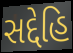
સદ્દેહિ